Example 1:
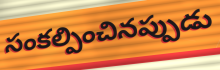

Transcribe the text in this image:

సంకల్పించినప్పుడు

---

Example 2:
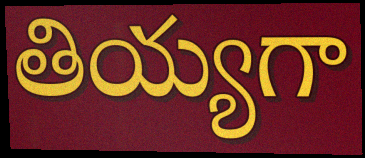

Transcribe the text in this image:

తియ్యగా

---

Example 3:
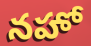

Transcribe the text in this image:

నహో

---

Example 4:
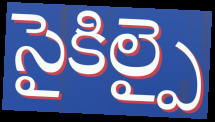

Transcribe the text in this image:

సైకిల్పై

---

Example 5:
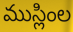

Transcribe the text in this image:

ముస్లింల